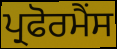
ਪ੍ਰਫੋਰਮੈਂਸ